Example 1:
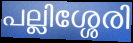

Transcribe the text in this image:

പല്ലിശ്ശേരി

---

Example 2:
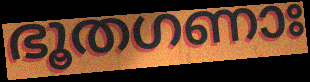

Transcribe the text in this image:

ഭൂതഗണാഃ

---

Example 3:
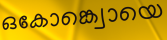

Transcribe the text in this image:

ഒകോങ്ക്വൊയെ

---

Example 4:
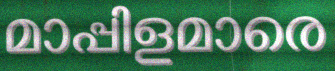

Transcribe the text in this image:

മാപ്പിളമാരെ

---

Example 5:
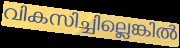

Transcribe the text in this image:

വികസിച്ചില്ലെങ്കിൽ